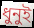
ধুনুই